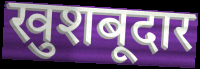
खुशबूदार